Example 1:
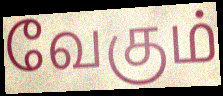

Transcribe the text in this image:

வேகும்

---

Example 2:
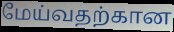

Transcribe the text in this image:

மேய்வதற்கான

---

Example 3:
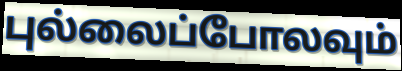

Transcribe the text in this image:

புல்லைப்போலவும்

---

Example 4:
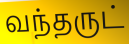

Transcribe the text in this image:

வந்தருட்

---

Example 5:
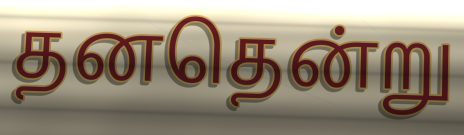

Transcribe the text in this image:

தனதென்று